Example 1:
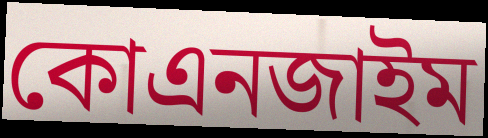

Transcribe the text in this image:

কোএনজাইম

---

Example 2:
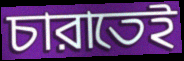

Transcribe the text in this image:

চারাতেই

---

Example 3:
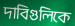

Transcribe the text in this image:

দাবিগুলিকে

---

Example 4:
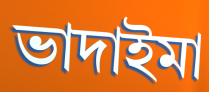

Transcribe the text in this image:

ভাদাইমা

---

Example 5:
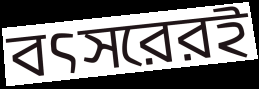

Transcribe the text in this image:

বৎসরেরই